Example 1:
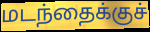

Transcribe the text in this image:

மடந்தைக்குச்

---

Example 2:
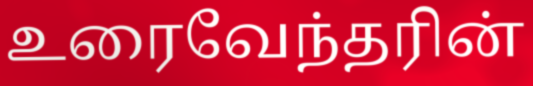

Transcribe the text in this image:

உரைவேந்தரின்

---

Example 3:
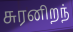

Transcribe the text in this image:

சுரனிறந்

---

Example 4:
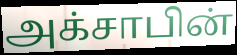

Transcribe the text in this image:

அக்சாபின்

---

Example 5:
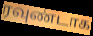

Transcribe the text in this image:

ரவுண்டாக